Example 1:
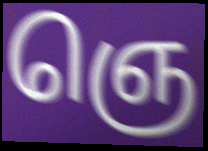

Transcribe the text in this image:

ஞெ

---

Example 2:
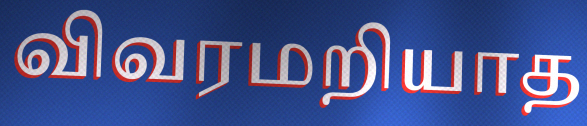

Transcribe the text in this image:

விவரமறியாத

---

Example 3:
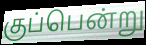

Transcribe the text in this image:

குப்பென்று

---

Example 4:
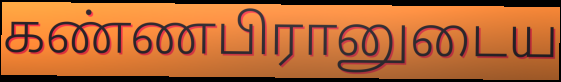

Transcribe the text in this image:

கண்ணபிரானுடைய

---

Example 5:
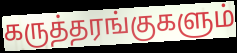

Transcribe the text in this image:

கருத்தரங்குகளும்